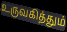
உருவகித்தும்